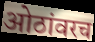
ओठांवरच